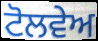
ਟੋਲਵੇਅ